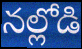
నల్లోడి